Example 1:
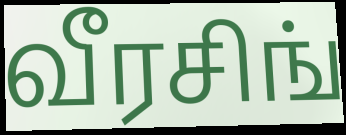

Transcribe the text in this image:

வீரசிங்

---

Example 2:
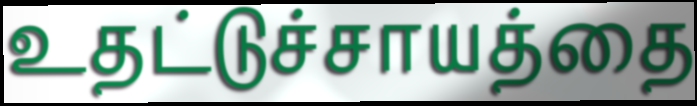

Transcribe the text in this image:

உதட்டுச்சாயத்தை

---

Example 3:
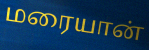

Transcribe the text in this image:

மரையான்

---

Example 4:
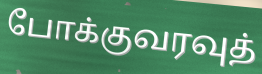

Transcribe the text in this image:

போக்குவரவுத்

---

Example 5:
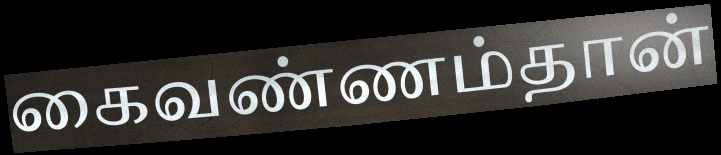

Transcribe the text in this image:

கைவண்ணம்தான்